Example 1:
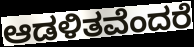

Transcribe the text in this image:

ಆಡಳಿತವೆಂದರೆ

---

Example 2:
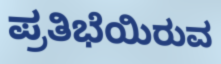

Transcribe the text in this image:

ಪ್ರತಿಭೆಯಿರುವ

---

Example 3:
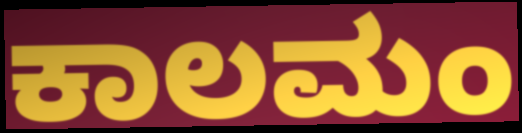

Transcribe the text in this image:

ಕಾಲಮಂ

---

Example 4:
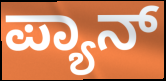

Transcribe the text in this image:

ಪ್ಯಾನ್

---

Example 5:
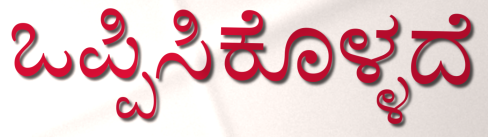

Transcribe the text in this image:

ಒಪ್ಪಿಸಿಕೊಳ್ಳದೆ